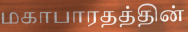
மகாபாரதத்தின்